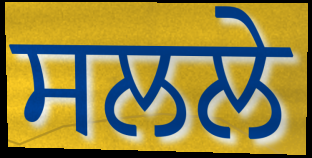
ਸਲਲੇ